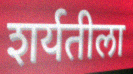
शर्यतीला